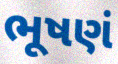
ભૂષણં